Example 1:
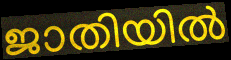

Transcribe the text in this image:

ജാതിയിൽ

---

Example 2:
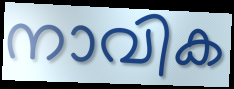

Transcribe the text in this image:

നാവിക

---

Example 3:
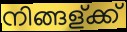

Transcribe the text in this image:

നിങ്ങള്ക്ക്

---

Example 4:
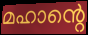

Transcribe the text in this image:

മഹാന്റെ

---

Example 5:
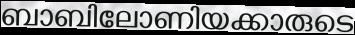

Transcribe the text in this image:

ബാബിലോണിയക്കാരുടെ